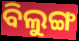
ବିଲୁଙ୍ଗ